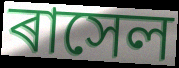
ৰাসেল